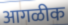
आगळीक